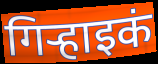
गिऱ्हाइकं